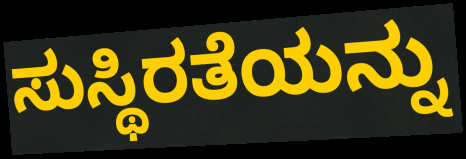
ಸುಸ್ಥಿರತೆಯನ್ನು